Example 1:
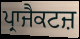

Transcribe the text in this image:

ਪ੍ਰਾਜੈਕਟਜ਼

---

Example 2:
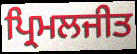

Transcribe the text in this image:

ਪ੍ਰਿਮਲਜੀਤ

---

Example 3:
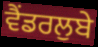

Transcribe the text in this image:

ਵੈਂਡਰਲੁਬੇ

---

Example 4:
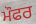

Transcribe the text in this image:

ਮੌਫਰ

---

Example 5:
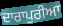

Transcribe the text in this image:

ਦਾਰਾਪੁਰੀਆ